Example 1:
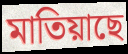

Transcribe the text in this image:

মাতিয়াছে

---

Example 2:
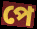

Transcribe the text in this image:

পে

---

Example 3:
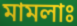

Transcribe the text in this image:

মামলাঃ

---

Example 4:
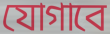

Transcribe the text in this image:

যোগাবে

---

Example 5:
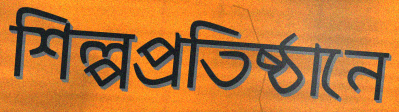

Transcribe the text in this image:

শিল্পপ্রতিষ্ঠানে